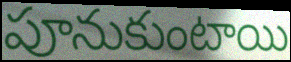
పూనుకుంటాయి